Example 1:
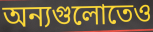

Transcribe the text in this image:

অন্যগুলোতেও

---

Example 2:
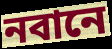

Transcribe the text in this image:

নবানে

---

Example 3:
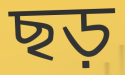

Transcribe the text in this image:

ছড়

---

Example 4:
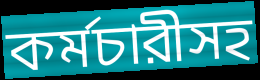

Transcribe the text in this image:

কর্মচারীসহ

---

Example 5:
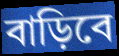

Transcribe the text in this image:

বাড়িবে